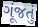
ગૂંજતું